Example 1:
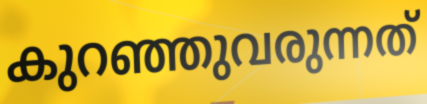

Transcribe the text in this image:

കുറഞ്ഞുവരുന്നത്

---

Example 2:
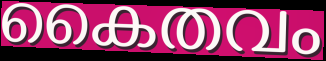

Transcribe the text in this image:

കൈതവം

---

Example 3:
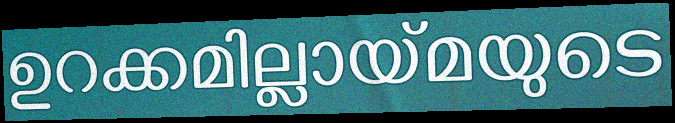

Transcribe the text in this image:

ഉറക്കമില്ലായ്മയുടെ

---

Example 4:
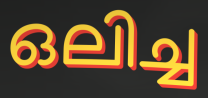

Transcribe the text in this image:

ഒലിച്ച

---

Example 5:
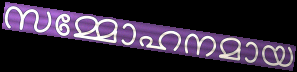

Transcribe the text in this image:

സമ്മോഹനമായ